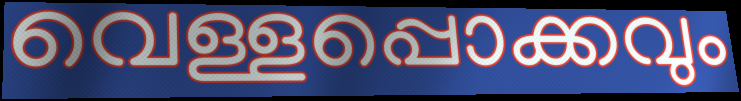
വെള്ളപ്പൊക്കവും